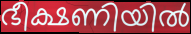
ഭീക്ഷണിയിൽ